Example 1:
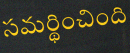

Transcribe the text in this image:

సమర్థించింది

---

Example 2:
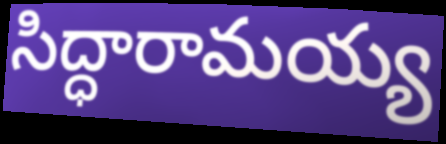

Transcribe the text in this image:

సిద్ధారామయ్య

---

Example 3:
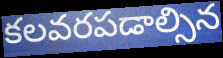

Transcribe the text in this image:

కలవరపడాల్సిన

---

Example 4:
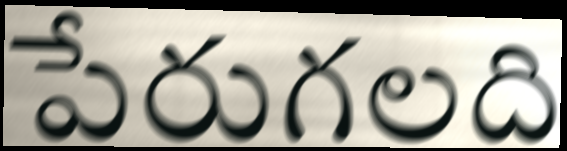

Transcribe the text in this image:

పేరుగలది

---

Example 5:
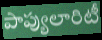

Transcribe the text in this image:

పాప్యులారిటీ